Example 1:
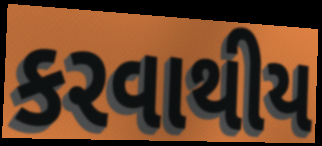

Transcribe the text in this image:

કરવાથીય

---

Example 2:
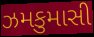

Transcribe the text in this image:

ઝમકુમાસી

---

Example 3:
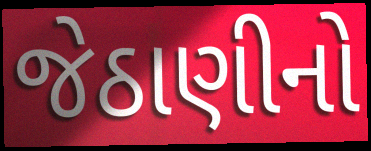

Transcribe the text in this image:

જેઠાણીનો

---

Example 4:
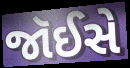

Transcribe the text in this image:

જૉઈસે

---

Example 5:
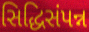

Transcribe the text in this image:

સિદ્ધિસંપન્ન